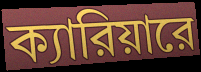
ক্যারিয়ারে